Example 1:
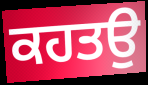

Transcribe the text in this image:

ਕਹਤਉ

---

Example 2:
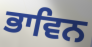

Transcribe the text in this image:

ਭਾਵਿਨ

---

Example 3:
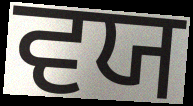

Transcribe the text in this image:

ਵਯ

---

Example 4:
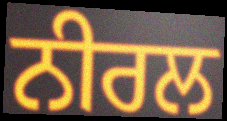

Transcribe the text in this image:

ਨੀਰਲ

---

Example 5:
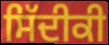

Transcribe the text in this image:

ਸਿੱਦੀਕੀ